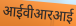
आईवीआरआई